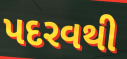
પદરવથી